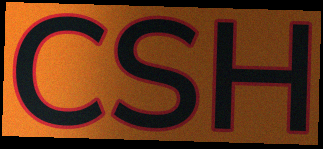
CSH